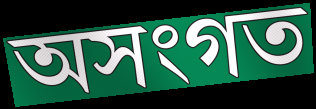
অসংগত